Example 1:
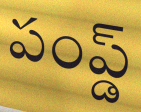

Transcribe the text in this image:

పంప్డ్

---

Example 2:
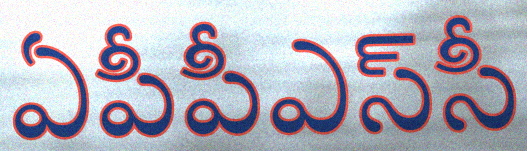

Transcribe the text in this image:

ఏపీపీఎస్‌సీ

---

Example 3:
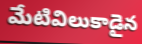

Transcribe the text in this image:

మేటివిలుకాడైన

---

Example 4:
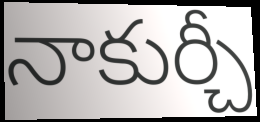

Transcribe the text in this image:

నాకుర్చీ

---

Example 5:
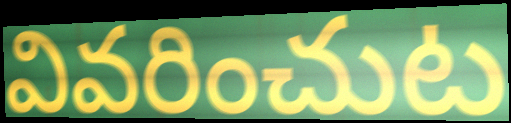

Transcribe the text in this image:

వివరించుట